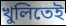
খুলিতেই